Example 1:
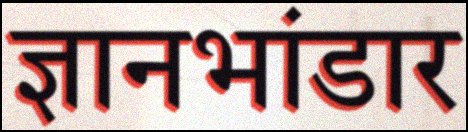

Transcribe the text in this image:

ज्ञानभांडार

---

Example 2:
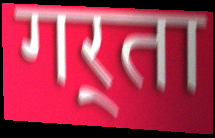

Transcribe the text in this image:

गर्ता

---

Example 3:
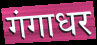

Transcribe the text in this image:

गंगाधर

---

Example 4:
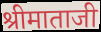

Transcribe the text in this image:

श्रीमाताजी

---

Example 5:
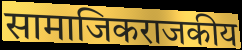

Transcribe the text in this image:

सामाजिकराजकीय